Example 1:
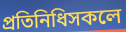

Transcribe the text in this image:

প্ৰতিনিধিসকলে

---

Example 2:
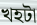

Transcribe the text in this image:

খহটা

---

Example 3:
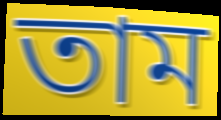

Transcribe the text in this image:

তাম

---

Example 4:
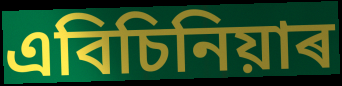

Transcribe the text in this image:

এবিচিনিয়াৰ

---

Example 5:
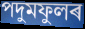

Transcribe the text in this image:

পদুমফুলৰ